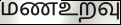
மணஉறவு